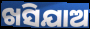
ଖସିଯାଅ